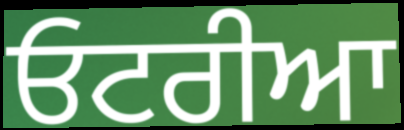
ਓਟਰੀਆ